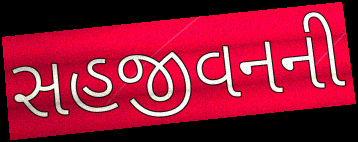
સહજીવનની